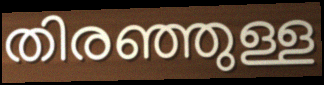
തിരഞ്ഞുള്ള